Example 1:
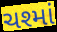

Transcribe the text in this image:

ચશ્માં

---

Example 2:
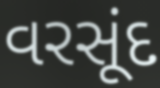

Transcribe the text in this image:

વરસૂંદ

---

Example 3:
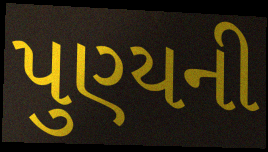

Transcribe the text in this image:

પુણ્યની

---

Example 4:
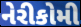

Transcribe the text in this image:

નેરીકોમી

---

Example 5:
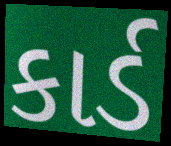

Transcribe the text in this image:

કાર્ડ